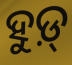
ହୁଡ଼୍